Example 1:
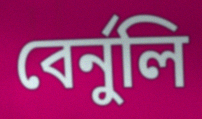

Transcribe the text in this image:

বেৰ্নুলি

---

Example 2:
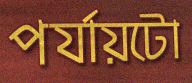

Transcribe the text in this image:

পৰ্যায়টো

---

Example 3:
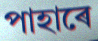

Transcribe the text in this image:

পাহাৰে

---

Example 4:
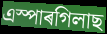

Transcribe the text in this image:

এস্পাৰগিলাছ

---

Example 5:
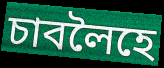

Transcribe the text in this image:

চাবলৈহে